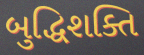
બુદ્ધિશક્તિ